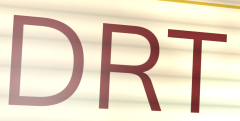
DRT